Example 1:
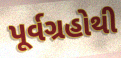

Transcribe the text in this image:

પૂર્વગ્રહોથી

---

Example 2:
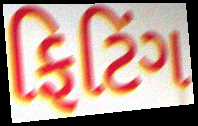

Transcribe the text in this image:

ફિટિંગ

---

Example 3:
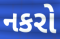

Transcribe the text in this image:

નકરો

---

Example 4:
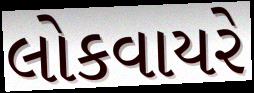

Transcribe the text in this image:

લોકવાયરે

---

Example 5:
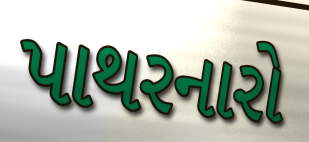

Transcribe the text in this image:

પાથરનારો